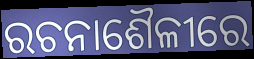
ରଚନାଶୈଳୀରେ